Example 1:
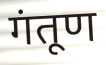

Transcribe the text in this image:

गंतूण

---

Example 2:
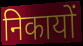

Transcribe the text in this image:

निकायों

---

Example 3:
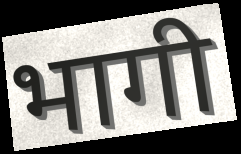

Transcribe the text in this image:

भागी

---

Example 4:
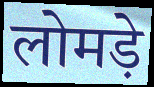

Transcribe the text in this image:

लोमड़े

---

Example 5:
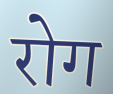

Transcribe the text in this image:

रोग